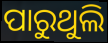
ପାରୁଥୁଲି